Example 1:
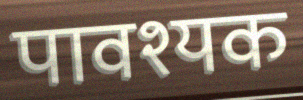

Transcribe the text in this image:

पावश्यक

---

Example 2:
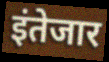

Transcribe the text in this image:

इंतेजार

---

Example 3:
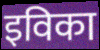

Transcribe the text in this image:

इविका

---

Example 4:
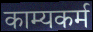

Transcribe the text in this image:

काम्यकर्म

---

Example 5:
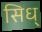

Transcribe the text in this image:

सिध्